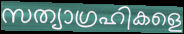
സത്യാഗ്രഹികളെ